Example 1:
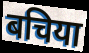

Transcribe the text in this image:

बचिया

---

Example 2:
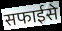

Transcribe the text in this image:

सफाईसे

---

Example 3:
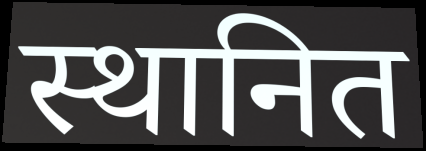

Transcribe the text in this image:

स्थानित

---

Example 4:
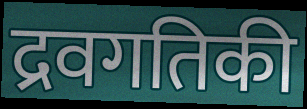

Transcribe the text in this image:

द्रवगतिकी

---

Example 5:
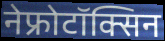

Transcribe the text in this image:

नेफ्रोटॉक्सिन